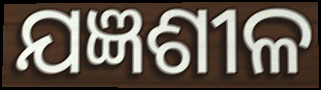
ଯଜ୍ଞଶୀଳ